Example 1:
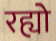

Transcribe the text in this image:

रह्यो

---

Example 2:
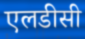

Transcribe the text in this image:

एलडीसी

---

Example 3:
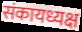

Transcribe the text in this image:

संकायध्यक्ष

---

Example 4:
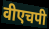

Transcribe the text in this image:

वीएचपी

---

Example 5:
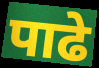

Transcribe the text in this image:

पाढे